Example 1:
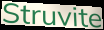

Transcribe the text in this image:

Struvite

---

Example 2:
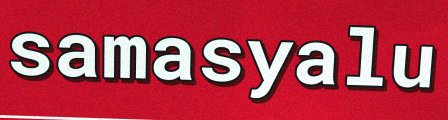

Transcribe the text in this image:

samasyalu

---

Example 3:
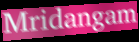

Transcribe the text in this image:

Mridangam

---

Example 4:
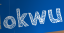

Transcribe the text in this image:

okwu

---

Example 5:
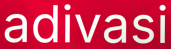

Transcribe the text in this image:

adivasi